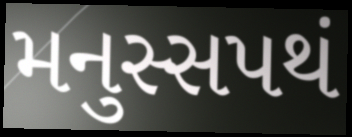
મનુસ્સપથં